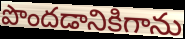
పొందడానికిగాను